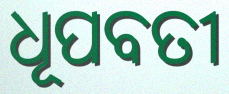
ଧୂପବତୀ